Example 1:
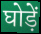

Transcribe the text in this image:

घोड़ें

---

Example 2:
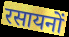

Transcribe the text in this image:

रसायनों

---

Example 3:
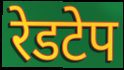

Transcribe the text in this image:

रेडटेप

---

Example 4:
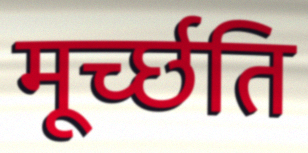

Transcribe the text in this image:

मूर्च्छति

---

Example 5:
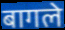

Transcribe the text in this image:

बागले